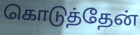
கொடுத்தேன்